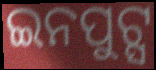
ଇନପୁଟ୍ସ